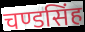
चण्डसिंह